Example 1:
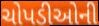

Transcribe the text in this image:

ચોપડીઓની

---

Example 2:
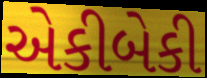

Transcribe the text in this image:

એકીબેકી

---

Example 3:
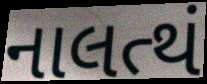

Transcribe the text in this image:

નાલત્થં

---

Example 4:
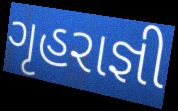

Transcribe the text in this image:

ગૃહરાજ્ઞી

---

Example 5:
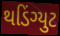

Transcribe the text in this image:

થડિંગ્યુટ